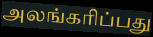
அலங்கரிப்பது